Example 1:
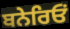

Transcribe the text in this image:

ਬਨੇਰਿਓਂ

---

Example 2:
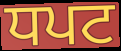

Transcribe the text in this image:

ਧਪਟ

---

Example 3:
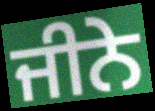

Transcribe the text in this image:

ਜੀਨੇ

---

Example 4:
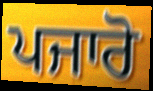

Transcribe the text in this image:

ਪਜਾਰੋ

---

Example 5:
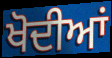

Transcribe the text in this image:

ਖੋਦੀਆਂ